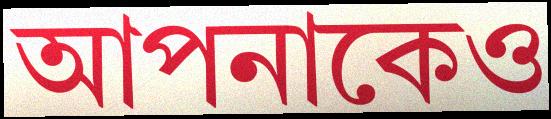
আপনাকেও